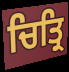
ਚਿਤ੍ਰਿ